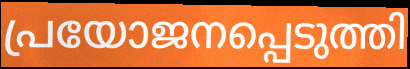
പ്രയോജനപ്പെടുത്തി